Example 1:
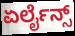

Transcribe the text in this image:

ಏರ್ಲೈನ್ಸ್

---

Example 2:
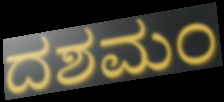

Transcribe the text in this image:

ದಶಮಂ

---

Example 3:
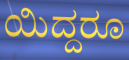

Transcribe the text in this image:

ಯಿದ್ದರೂ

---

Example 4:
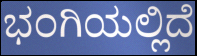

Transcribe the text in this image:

ಭಂಗಿಯಲ್ಲಿದೆ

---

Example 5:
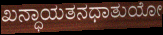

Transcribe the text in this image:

ಖನ್ಧಾಯತನಧಾತುಯೋ